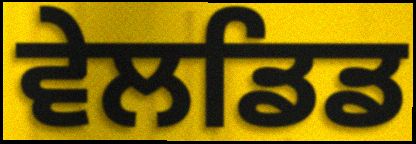
ਵੇਲਡਿਡ